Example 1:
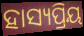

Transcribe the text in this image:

ହାସ୍ୟପ୍ରିୟ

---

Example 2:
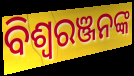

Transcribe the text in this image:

ବିଶ୍ବରଞ୍ଜନଙ୍କ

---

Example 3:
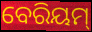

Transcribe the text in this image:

ବେରିୟମ୍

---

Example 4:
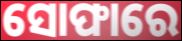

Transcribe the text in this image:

ସୋଫାରେ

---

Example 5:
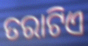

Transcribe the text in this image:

ତରାଟିଏ